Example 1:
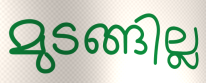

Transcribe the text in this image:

മുടങ്ങില്ല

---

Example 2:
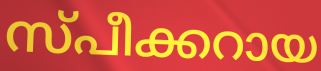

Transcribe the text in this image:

സ്പീക്കറായ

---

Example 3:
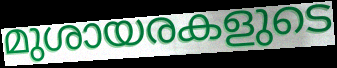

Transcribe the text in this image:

മുശായരകളുടെ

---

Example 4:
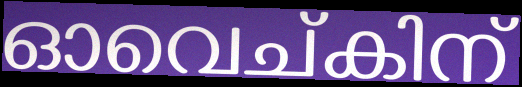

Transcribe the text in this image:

ഓവെച്കിന്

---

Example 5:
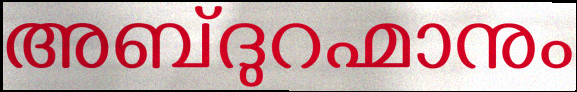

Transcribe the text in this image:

അബ്ദുറഹ്മാനും